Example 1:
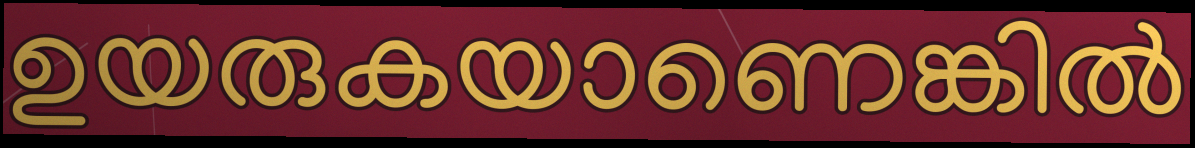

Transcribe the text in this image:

ഉയരുകയാണെങ്കിൽ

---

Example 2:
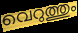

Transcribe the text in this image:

വെറുത്തും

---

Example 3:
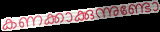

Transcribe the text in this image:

കണക്കാക്കുന്നുണ്ടോ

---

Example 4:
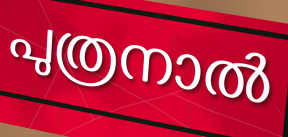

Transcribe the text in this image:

പുത്രനാൽ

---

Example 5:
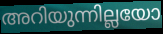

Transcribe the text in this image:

അറിയുന്നില്ലയോ